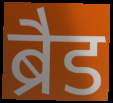
ब्रैड